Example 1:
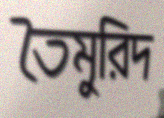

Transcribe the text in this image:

তৈমুরিদ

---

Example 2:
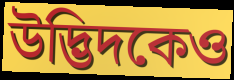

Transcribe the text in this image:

উদ্ভিদকেও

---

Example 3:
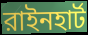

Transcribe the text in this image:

রাইনহার্ট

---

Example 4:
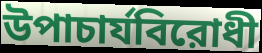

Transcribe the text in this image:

উপাচার্যবিরোধী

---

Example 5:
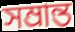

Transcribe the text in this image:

সম্রান্ত